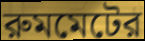
রুমমেটের